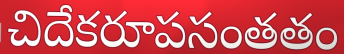
చిదేకరూపసంతతం